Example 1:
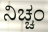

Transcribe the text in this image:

ನಿಚ್ಚಂ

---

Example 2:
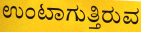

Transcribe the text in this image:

ಉಂಟಾಗುತ್ತಿರುವ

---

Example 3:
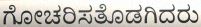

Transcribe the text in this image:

ಗೋಚರಿಸತೊಡಗಿದರು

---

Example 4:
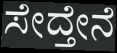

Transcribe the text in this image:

ಸೇದ್ತೇನೆ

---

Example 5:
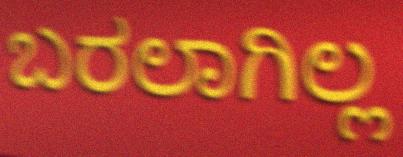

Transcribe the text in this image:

ಬರಲಾಗಿಲ್ಲ